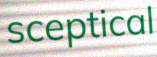
sceptical